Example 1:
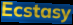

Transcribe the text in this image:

Ecstasy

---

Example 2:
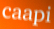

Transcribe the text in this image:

caapi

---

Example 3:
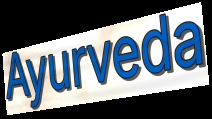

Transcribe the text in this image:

Ayurveda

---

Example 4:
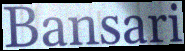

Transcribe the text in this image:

Bansari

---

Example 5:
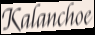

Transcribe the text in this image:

Kalanchoe